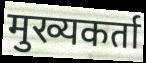
मुख्यकर्ता